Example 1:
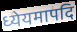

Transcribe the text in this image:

ध्येयमापदि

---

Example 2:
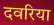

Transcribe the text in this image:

दवरिया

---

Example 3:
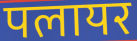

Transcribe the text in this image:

पलायर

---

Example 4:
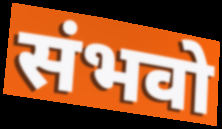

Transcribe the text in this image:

संभवो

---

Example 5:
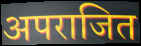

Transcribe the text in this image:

अपराजित